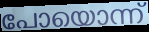
പോയൊന്ന്